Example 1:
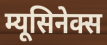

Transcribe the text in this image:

म्यूसिनेक्स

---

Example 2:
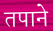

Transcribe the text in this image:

तपाने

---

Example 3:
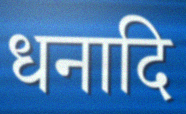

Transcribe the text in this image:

धनादि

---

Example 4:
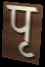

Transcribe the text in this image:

पृ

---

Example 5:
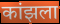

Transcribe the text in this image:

कांझला